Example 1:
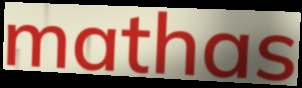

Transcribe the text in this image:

mathas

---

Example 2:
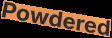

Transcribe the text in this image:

Powdered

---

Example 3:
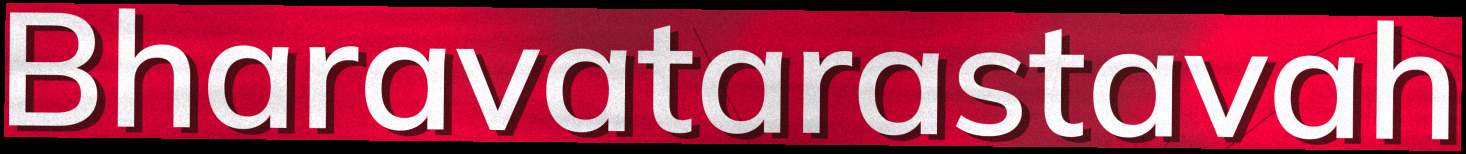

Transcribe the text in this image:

Bharavatarastavah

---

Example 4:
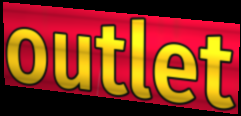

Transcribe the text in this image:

outlet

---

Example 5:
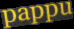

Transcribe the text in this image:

pappu